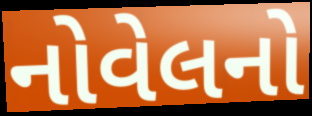
નોવેલનો